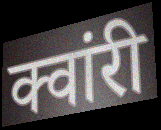
क्वांरी